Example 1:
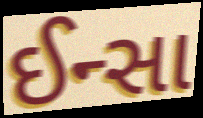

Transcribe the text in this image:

ઈન્સા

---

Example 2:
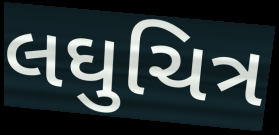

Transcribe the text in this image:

લઘુચિત્ર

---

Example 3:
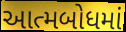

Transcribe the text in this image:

આત્મબોધમાં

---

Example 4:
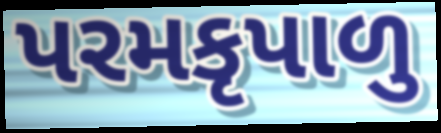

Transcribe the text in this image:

પરમકૃપાળુ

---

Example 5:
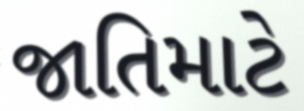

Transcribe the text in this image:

જાતિમાટે